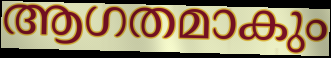
ആഗതമാകും